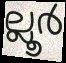
ല്ലൂർ